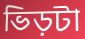
ভিড়টা